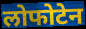
लोफोटेन